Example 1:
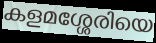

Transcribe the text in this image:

കളമശ്ശേരിയെ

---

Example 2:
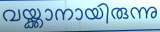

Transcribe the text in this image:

വയ്ക്കാനായിരുന്നു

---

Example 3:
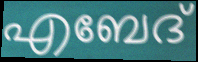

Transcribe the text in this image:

എബേദ്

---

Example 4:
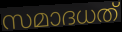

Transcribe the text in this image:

സമാദധത്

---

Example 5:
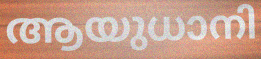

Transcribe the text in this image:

ആയുധാനി